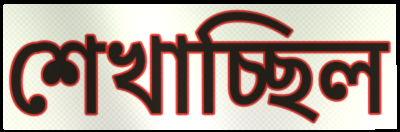
শেখাচ্ছিল